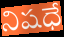
నిషధే